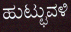
ಹುಟ್ಟುವಳಿ